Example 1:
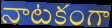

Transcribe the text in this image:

నాటకంగా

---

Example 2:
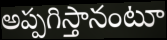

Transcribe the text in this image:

అప్పగిస్తానంటూ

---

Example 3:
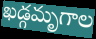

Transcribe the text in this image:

ఖడ్గమృగాల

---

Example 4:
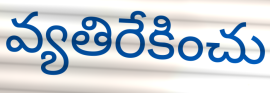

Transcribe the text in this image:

వ్యతిరేకించు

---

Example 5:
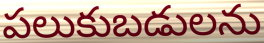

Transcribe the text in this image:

పలుకుబడులను